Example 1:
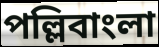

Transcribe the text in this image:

পল্লিবাংলা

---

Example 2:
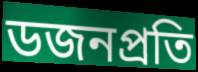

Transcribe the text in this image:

ডজনপ্রতি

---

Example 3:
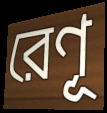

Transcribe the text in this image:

রেণূ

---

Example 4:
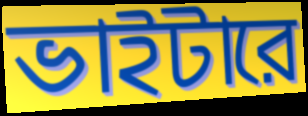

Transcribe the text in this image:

ভাইটারে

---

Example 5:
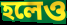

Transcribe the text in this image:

হলেও